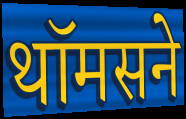
थॉमसने